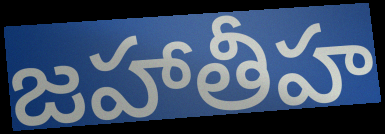
జహాతీహ